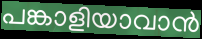
പങ്കാളിയാവാൻ